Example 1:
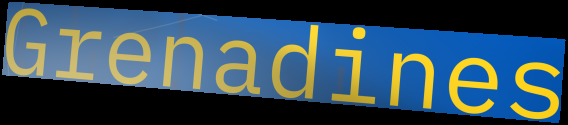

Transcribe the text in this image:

Grenadines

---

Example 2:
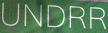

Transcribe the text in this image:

UNDRR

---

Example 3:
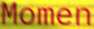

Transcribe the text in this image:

Momen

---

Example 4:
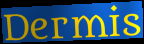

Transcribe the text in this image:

Dermis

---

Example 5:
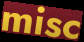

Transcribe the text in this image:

misc